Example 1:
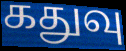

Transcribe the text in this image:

கதுவு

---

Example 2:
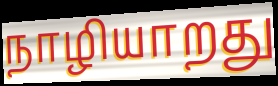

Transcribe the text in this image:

நாழியாறது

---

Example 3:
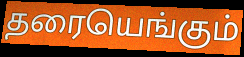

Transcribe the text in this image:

தரையெங்கும்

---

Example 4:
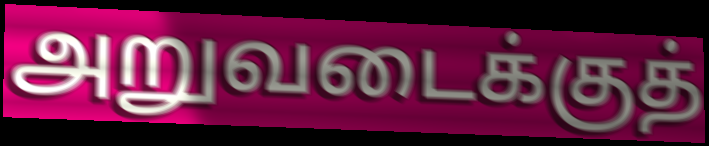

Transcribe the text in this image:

அறுவடைக்குத்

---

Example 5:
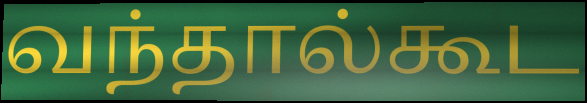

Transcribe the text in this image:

வந்தால்கூட